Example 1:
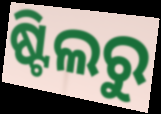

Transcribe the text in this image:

ଷ୍ଟିଲରୁ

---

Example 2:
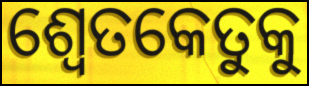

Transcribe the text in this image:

ଶ୍ୱେତକେତୁକୁ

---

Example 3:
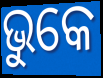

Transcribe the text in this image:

ଭୁକେ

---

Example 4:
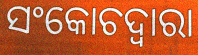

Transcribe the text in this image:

ସଂକୋଚଦ୍ୱାରା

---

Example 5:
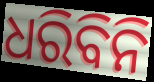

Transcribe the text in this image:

ଧରିବିନି